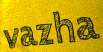
vazha